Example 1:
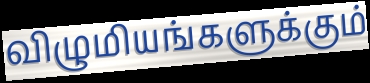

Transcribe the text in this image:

விழுமியங்களுக்கும்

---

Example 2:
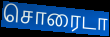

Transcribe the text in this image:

சொரைடா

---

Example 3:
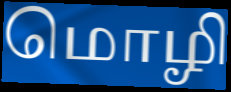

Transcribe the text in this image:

மொழி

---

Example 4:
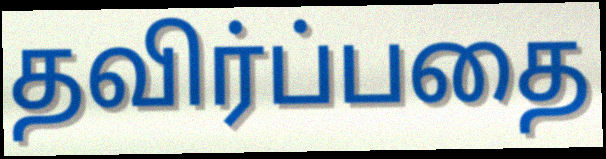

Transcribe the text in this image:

தவிர்ப்பதை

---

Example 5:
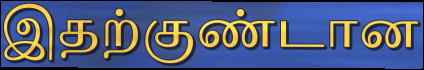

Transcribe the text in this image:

இதற்குண்டான